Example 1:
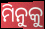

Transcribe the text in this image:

ମିନୁକୁ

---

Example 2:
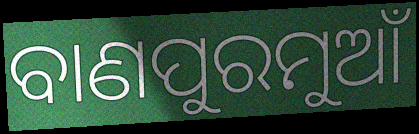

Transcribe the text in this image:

ବାଣପୁରମୁଆଁ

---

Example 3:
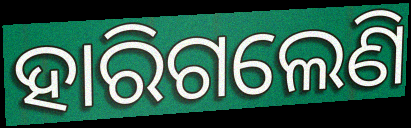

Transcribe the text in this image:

ହାରିଗଲେଣି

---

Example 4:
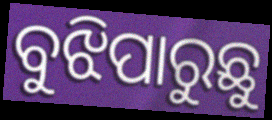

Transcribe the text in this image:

ବୁଝିପାରୁଛୁ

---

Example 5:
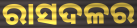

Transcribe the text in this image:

ରାସଦଳର